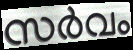
സർവം